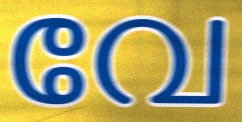
വേ